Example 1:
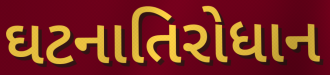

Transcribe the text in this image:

ઘટનાતિરોધાન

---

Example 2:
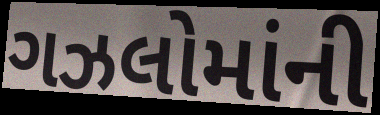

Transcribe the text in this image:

ગઝલોમાંની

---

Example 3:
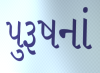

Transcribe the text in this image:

પુરૂષનાં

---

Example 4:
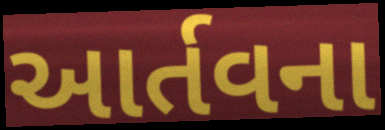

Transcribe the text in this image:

આર્તવના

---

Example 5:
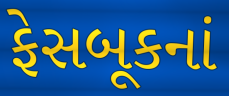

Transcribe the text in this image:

ફેસબૂકનાં